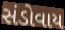
સંડોવાય